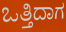
ಒತ್ತಿದಾಗ